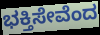
ಭಕ್ತಿಸೇವೆಂದ